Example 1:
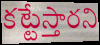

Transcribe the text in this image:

కట్టేస్తారని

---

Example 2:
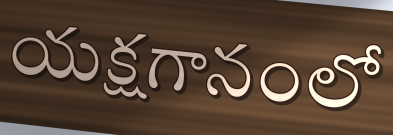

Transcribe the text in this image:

యక్షగానంలో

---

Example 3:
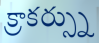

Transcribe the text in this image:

క్రాకర్స్ను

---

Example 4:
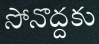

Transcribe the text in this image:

సోనొద్దకు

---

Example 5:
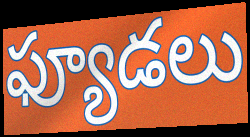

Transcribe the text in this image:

ఫ్యూడలు